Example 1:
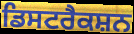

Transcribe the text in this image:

ਡਿਸਟਰੈਕਸ਼ਨ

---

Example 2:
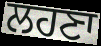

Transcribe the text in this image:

ਲਹਣਾ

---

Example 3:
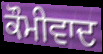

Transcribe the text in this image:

ਕੌਮੀਵਾਦ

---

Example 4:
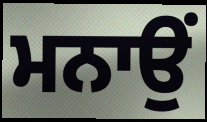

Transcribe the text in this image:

ਮਨਾਉਂ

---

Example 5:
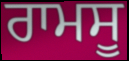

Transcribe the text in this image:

ਰਾਮਸੂ